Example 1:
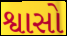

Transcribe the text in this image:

શ્વાસો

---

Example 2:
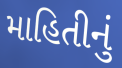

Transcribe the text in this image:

માહિતીનું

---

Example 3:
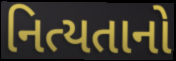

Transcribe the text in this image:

નિત્યતાનો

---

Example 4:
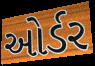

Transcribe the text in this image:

ઓર્ડર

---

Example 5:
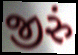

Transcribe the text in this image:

જીરું